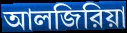
আলজিরিয়া